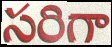
సరిగా